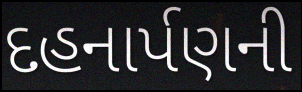
દહનાર્પણની